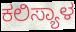
ಕಲಿಸ್ಯಾಳ